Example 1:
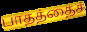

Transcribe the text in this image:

பாதத்தைச்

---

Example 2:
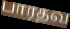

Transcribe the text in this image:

பாரதவ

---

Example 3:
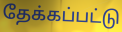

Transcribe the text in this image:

தேக்கப்பட்டு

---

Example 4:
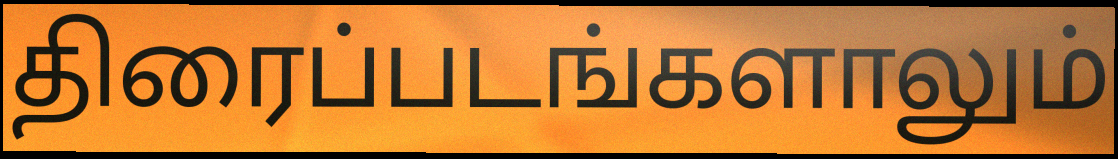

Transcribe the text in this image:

திரைப்படங்களாலும்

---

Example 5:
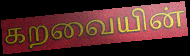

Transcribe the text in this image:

கறவையின்